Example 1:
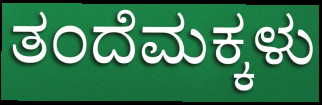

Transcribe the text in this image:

ತಂದೆಮಕ್ಕಳು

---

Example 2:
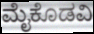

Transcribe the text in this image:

ಮೈಕೊಡವಿ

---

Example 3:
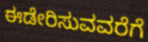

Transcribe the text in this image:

ಈಡೇರಿಸುವವರೆಗೆ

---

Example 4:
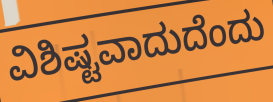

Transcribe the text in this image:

ವಿಶಿಷ್ಟವಾದುದೆಂದು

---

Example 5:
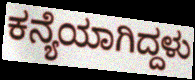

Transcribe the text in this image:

ಕನ್ಯೆಯಾಗಿದ್ದಳು